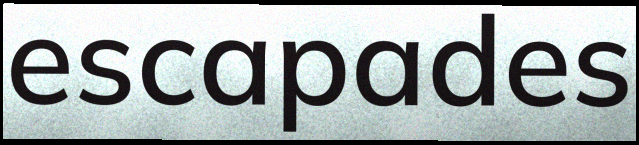
escapades